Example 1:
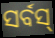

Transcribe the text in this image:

ସର୍ବସ୍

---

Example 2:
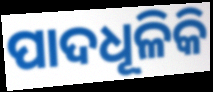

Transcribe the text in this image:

ପାଦଧୂଳିକି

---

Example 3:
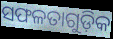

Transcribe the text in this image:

ସଫଳତାଗୁଡ଼ିକ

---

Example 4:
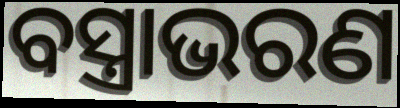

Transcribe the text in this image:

ବସ୍ତ୍ରାଭରଣ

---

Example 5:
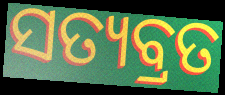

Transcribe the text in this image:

ସତ୍ୟବ୍ରତ